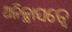
ଅନିଚ୍ଛାସତ୍ୱେ